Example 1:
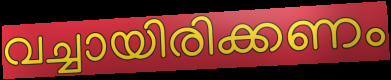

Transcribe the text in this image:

വച്ചായിരിക്കണം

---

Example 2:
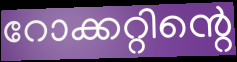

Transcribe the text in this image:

റോക്കറ്റിന്റെ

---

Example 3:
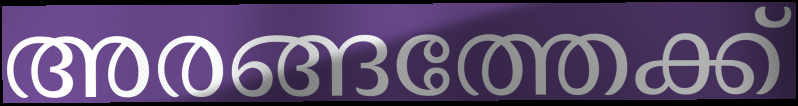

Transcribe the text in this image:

അരങ്ങത്തേക്ക്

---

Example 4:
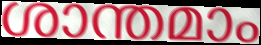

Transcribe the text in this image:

ശാന്തമാം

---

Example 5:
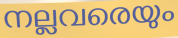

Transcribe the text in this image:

നല്ലവരെയും